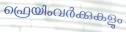
ഫ്രെയിംവർക്കുകളും